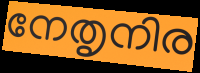
നേതൃനിര